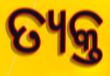
ତ୍ୟକ୍ତ